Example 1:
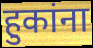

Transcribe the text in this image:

हुकांना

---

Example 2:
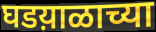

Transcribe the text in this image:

घडय़ाळाच्या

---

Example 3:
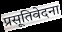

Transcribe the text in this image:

प्रसूतिवेदना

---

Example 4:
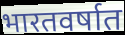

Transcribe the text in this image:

भारतवर्षात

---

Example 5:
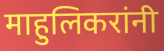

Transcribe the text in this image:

माहुलिकरांनी